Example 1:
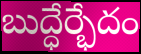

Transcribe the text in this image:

బుద్ధేర్భేదం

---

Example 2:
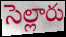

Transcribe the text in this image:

సెల్లారు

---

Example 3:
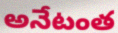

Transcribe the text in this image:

అనేటంత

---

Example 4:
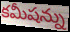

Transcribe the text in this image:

కమీషన్ను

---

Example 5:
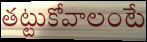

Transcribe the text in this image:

తట్టుకోవాలంటే